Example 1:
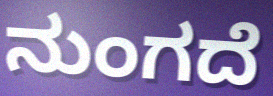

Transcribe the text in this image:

ನುಂಗದೆ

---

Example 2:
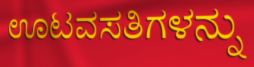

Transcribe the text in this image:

ಊಟವಸತಿಗಳನ್ನು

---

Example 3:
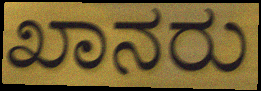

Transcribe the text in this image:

ಖಾನರು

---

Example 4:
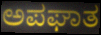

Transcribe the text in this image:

ಅಪಘಾತ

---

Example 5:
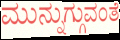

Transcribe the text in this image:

ಮುನ್ನುಗ್ಗುವಂತೆ